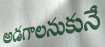
అడగాలనుకునే